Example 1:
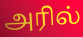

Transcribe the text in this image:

அரில்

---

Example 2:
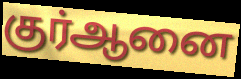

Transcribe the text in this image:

குர்ஆனை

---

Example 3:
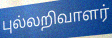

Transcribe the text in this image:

புல்லறிவாளர்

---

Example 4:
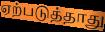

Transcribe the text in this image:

ஏற்படுத்தாது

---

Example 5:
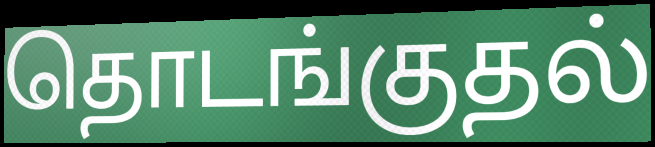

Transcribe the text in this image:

தொடங்குதல்